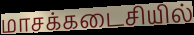
மாசக்கடைசியில்